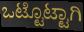
ಒಟ್ಟೊಟ್ಟಾಗಿ